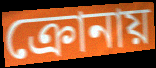
ক্রোনায়